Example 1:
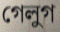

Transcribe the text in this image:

গেলুগ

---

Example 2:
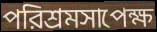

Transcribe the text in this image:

পরিশ্রমসাপেক্ষ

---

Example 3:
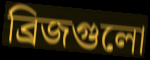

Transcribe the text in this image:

ব্রিজগুলো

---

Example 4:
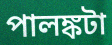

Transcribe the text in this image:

পালঙ্কটা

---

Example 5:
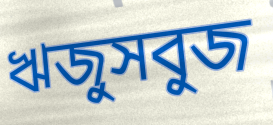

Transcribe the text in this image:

ঋজুসবুজ